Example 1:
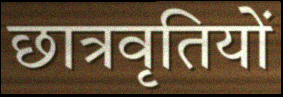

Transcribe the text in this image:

छात्रवृतियों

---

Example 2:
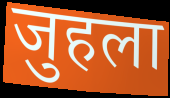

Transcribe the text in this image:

जुहला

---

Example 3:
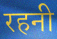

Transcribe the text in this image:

रहनी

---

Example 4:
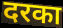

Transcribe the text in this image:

दरका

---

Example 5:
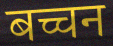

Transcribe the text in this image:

बच्चन